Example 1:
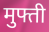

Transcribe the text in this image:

मुफ्ती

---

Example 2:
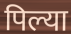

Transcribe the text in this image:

पिल्या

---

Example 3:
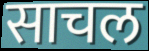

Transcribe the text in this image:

साचल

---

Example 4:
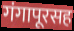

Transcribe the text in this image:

गंगापूरसह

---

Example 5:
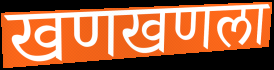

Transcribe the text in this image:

खणखणला